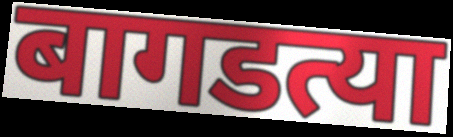
बागडत्या